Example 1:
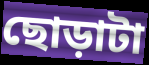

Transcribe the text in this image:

ছোড়াটা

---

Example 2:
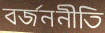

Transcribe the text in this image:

বর্জননীতি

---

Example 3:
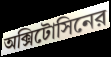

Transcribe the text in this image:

অক্সিটোসিনের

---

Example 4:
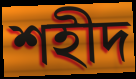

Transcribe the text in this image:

শহীদ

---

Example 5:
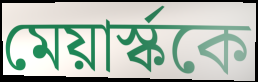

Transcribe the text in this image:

মেয়ার্স্ককে